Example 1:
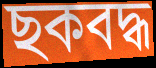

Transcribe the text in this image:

ছকবদ্ধ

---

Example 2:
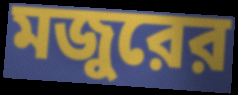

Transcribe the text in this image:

মজুরের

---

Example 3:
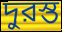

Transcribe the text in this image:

দুরস্ত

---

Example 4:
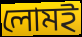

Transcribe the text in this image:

লোমই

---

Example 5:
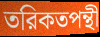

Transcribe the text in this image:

তরিকতপন্থী